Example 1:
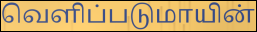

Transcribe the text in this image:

வெளிப்படுமாயின்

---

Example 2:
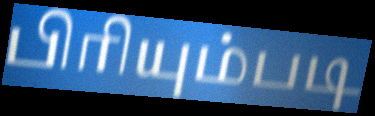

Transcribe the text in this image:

பிரியும்படி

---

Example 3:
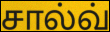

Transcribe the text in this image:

சால்வ்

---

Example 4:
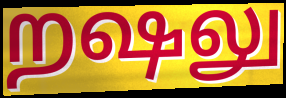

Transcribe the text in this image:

றஷலு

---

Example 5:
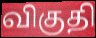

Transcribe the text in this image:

விகுதி